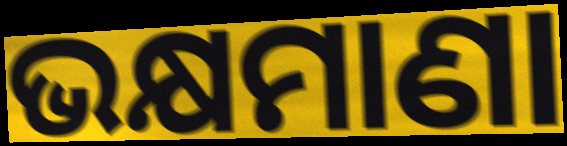
ଭକ୍ଷମାଣା